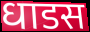
धाडस